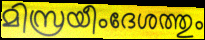
മിസ്രയീംദേശത്തും